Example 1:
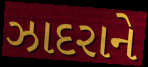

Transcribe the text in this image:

ઝાદરાને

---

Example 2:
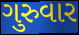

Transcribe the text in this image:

ગુરુવાર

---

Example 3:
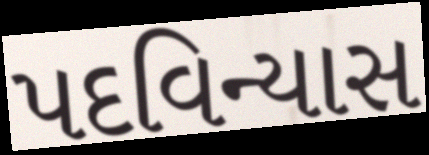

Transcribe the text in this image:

પદવિન્યાસ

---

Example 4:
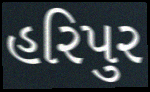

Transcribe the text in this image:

હરિપુર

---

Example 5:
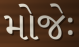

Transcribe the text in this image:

મોજેઃ